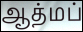
ஆத்மப்